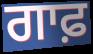
ਗਾਫ਼